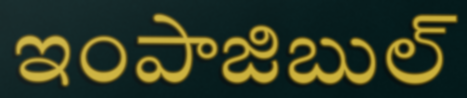
ఇంపాజిబుల్